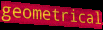
geometrical